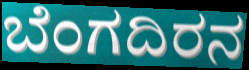
ಬೆಂಗದಿರನ